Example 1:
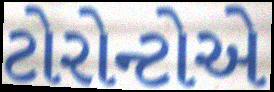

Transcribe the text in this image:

ટોરોન્ટોએ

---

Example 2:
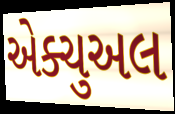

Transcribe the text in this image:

એક્ચુઅલ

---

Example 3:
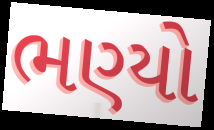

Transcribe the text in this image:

ભણ્યો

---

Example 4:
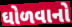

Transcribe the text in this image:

ઘોળવાનો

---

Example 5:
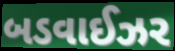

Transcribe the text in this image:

બડવાઈઝર